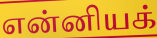
என்னியக்